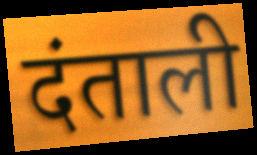
दंताली